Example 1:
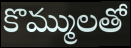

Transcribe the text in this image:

కొమ్ములతో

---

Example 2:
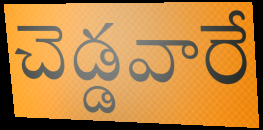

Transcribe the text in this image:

చెడ్డవారే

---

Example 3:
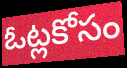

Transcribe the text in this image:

ఓట్లకోసం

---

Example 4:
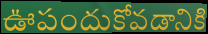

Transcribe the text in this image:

ఊపందుకోవడానికి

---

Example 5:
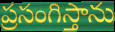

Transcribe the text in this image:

ప్రసంగిస్తాను